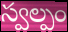
స్వల్పం